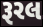
રૂરલ